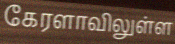
கேரளாவிலுள்ள